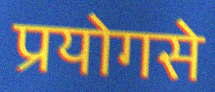
प्रयोगसे